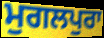
ਮੁਗਲਪੁਰਾ